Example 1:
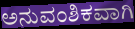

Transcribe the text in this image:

ಅನುವಂಶಿಕವಾಗಿ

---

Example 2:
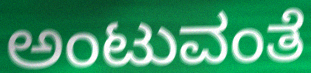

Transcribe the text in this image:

ಅಂಟುವಂತೆ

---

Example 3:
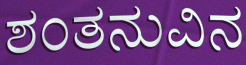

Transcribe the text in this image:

ಶಂತನುವಿನ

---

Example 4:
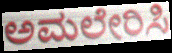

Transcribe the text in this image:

ಅಮಲೇರಿಸಿ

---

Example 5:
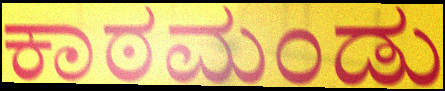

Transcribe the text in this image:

ಕಾಠಮಂಡು